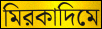
মিরকাদিমে